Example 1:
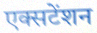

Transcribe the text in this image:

एक्सटेंशन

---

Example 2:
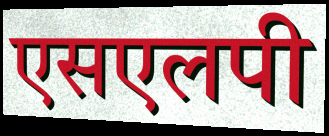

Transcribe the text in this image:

एसएलपी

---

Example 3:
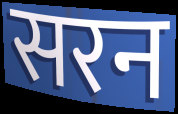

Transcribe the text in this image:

सरन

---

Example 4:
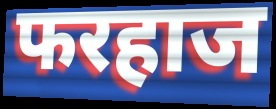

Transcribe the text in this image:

फरहाज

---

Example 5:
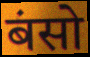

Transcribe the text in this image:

बंसो